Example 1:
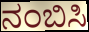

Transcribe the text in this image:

ನಂಬಿಸಿ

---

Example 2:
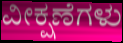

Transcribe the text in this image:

ವೀಕ್ಷಣೆಗಳು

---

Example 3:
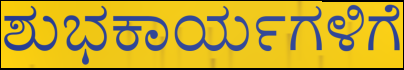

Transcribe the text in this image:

ಶುಭಕಾರ್ಯಗಳಿಗೆ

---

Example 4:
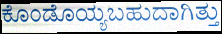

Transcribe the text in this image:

ಕೊಂಡೊಯ್ಯಬಹುದಾಗಿತ್ತು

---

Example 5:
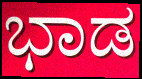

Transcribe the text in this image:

ಭಾಡ